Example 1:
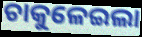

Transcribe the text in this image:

ଚାକୁଳେଇଲା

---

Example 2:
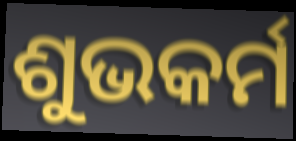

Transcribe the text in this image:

ଶୁଭକର୍ମ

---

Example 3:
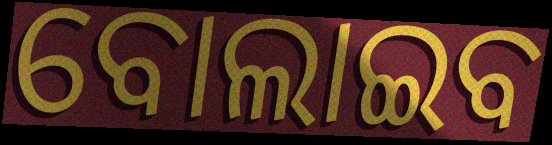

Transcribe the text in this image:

ବୋଲାଇବ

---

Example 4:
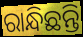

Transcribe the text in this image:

ରାନ୍ଧିଛନ୍ତି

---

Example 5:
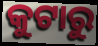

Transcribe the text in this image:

କୁଟାରୁ